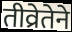
तीव्रेतेने